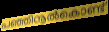
പഞ്ഞിനൂൽകൊണ്ട്